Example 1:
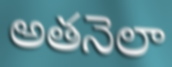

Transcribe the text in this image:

అతనెలా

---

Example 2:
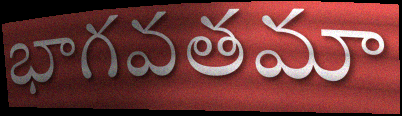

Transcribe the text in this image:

భాగవతమా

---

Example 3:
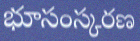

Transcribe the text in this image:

భూసంస్కరణ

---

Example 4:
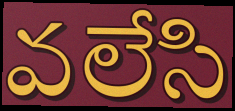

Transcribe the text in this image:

వలేసి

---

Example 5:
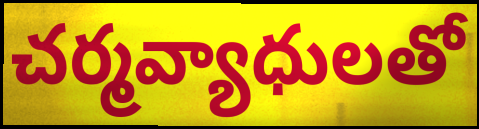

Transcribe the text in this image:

చర్మవ్యాధులతో